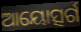
ଆୟୋତ୍ସର୍ଗ